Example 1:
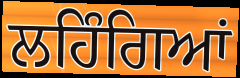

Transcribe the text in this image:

ਲਹਿੰਗਿਆਂ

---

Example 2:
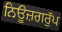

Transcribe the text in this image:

ਨਿਊਜ਼ਗਰੁੱਪ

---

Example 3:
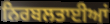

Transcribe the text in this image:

ਨਿਰਬਲਤਾਈਆਂ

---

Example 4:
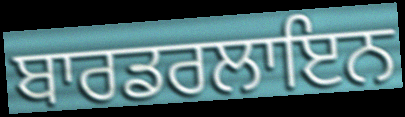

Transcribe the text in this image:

ਬਾਰਡਰਲਾਇਨ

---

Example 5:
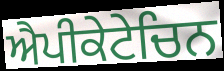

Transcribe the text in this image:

ਐਪੀਕੇਟੇਚਿਨ